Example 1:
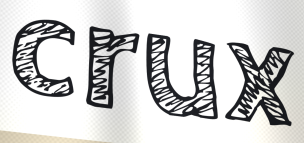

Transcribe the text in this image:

crux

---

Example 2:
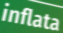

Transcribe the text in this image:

inflata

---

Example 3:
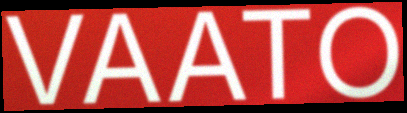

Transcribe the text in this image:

VAATO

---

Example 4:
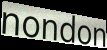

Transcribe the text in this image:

nondon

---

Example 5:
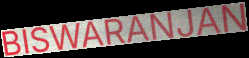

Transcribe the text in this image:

BISWARANJAN